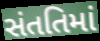
સંતતિમાં